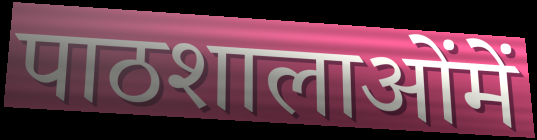
पाठशालाओंमें